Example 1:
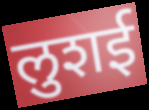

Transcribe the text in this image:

लुशई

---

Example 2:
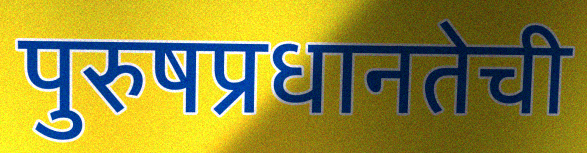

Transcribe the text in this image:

पुरुषप्रधानतेची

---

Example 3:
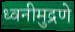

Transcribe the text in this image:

ध्वनीमुद्रणे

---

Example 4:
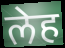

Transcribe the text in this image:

लेह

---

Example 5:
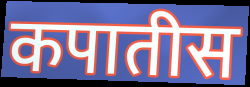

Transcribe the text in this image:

कपातीस